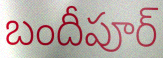
బందీపూర్